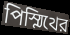
পিস্মিথের